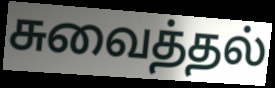
சுவைத்தல்